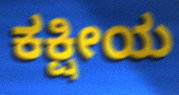
ಕಕ್ಷೀಯ